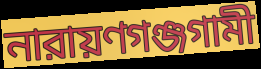
নারায়ণগঞ্জগামী